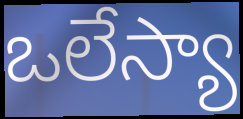
ఒలేస్యా